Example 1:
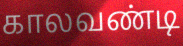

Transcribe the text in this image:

காலவண்டி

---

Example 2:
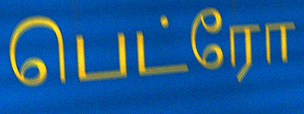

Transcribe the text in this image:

பெட்ரோ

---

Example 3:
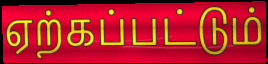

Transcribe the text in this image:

ஏற்கப்பட்டும்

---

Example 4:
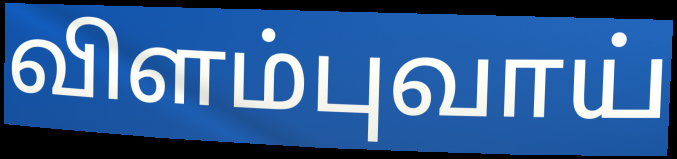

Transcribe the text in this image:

விளம்புவாய்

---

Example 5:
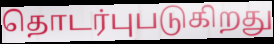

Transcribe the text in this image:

தொடர்புபடுகிறது